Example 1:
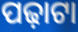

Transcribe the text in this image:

ପଢ଼ାଟା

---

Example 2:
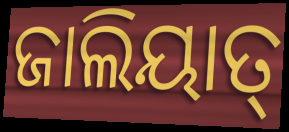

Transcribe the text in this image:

ଜାଲିୟାତ୍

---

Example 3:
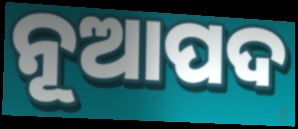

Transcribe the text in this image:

ନୂଆପଦ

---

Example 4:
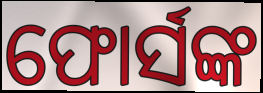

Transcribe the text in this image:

ଫୋର୍ସଙ୍କ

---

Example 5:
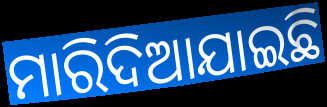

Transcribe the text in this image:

ମାରିଦିଆଯାଇଛି